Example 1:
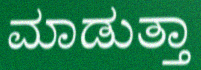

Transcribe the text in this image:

ಮಾಡುತ್ತಾ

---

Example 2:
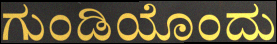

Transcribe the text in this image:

ಗುಂಡಿಯೊಂದು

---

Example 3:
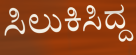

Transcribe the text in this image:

ಸಿಲುಕಿಸಿದ್ದ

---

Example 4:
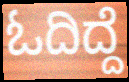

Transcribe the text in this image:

ಓದಿದ್ದೆ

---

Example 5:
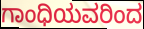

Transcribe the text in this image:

ಗಾಂಧಿಯವರಿಂದ